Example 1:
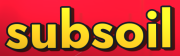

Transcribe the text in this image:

subsoil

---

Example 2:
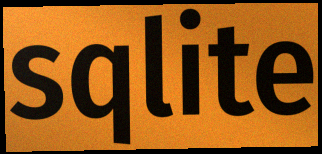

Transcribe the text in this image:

sqlite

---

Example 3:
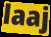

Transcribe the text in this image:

laaj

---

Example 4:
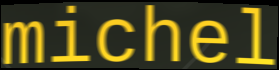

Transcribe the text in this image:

michel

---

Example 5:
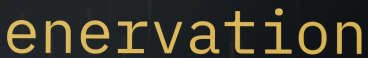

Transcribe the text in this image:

enervation